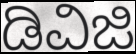
ಡಿವಿಜಿ